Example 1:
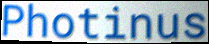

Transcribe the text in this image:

Photinus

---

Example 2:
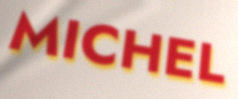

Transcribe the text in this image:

MICHEL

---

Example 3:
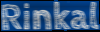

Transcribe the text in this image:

Rinkal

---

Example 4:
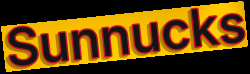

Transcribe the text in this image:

Sunnucks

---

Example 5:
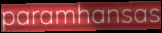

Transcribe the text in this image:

paramhansas